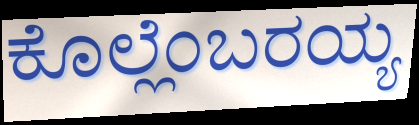
ಕೊಲ್ಲೆಂಬರಯ್ಯ